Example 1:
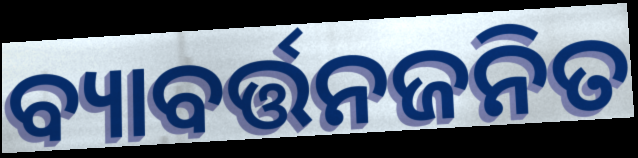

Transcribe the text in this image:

ବ୍ୟାବର୍ତ୍ତନଜନିତ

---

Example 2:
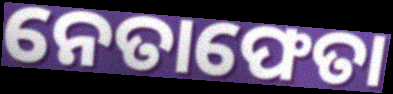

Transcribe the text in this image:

ନେତାଫେତା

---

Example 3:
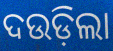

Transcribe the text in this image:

ଦଉଡ଼ିଲା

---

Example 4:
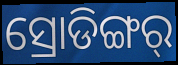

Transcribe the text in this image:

ସ୍ରୋଡିଙ୍ଗର୍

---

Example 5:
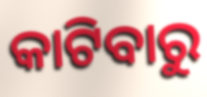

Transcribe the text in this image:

କାଟିବାରୁ